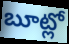
బూట్లో